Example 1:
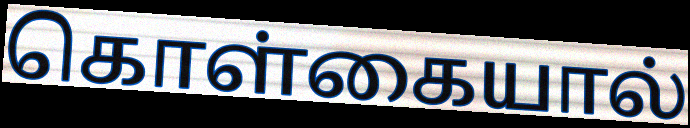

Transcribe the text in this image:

கொள்கையால்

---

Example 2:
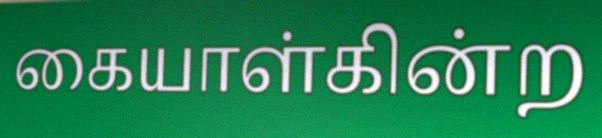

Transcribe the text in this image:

கையாள்கின்ற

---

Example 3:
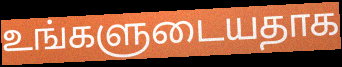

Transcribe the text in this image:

உங்களுடையதாக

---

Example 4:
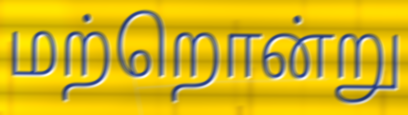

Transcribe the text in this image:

மற்றொன்று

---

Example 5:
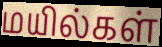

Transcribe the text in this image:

மயில்கள்